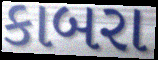
કાબરા